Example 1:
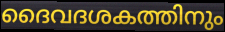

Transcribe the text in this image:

ദൈവദശകത്തിനും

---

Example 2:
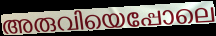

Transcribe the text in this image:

അരുവിയെപ്പോലെ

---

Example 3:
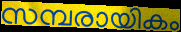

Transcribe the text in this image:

സമ്പരായികം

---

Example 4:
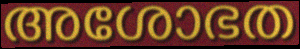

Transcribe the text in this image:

അശോഭത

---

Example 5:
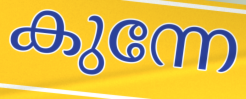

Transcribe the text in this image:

കുന്നേ